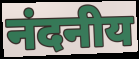
नंदनीय